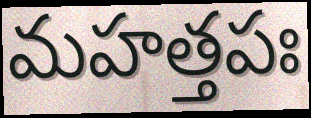
మహత్తపః